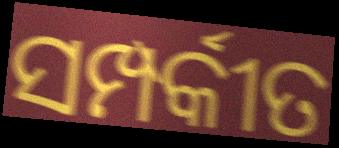
ସମ୍ପର୍କୀତ